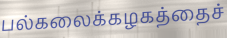
பல்கலைக்கழகத்தைச்